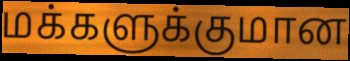
மக்களுக்குமான